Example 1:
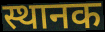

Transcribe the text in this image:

स्थानक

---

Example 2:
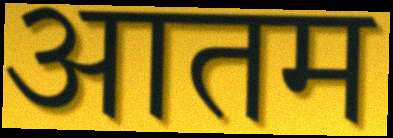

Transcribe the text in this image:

आतम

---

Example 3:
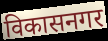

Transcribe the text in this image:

विकासनगर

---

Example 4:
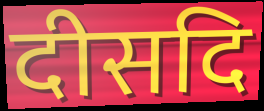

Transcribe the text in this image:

दीसदि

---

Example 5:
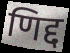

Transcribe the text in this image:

णिद्द